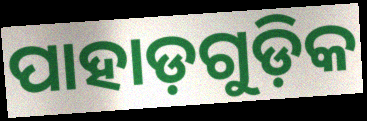
ପାହାଡ଼ଗୁଡ଼ିକ